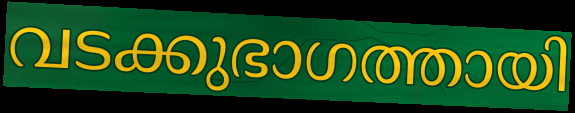
വടക്കുഭാഗത്തായി